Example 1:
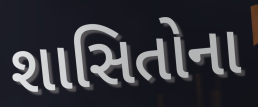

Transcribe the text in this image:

શાસિતોના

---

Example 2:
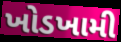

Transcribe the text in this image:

ખોડખામી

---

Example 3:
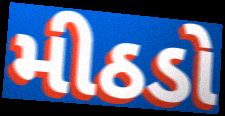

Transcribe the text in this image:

મીઠડો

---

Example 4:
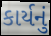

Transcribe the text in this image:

કાર્યનું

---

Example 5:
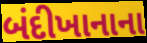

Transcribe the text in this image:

બંદીખાનાના